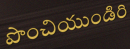
పొంచియుండిరి